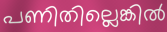
പണിതില്ലെങ്കിൽ